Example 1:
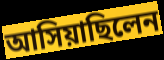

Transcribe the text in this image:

আসিয়াছিলেন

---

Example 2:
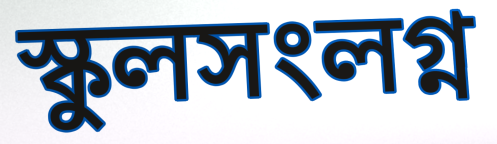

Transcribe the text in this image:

স্কুলসংলগ্ন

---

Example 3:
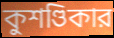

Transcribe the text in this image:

কুশণ্ডিকার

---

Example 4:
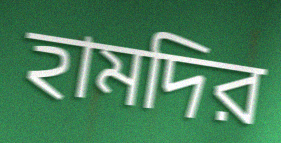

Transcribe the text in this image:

হামদির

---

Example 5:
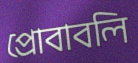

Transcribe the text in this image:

প্রোবাবলি